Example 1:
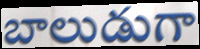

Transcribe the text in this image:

బాలుడుగా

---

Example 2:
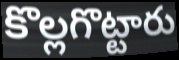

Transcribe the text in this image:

కొల్లగొట్టారు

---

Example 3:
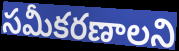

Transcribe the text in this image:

సమీకరణాలని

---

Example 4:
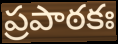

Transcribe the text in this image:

ప్రపాఠకః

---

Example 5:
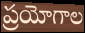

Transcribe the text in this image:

ప్రయోగాల